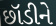
છૉડીને